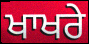
ਖਾਖਰੇ